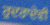
ਰੁਦਰਾਦੇਵੀ